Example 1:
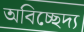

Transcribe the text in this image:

অবিচ্ছেদ্য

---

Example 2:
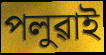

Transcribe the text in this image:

পলুৱাই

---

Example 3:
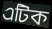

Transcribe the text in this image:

এটিক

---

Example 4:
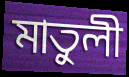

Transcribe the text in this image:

মাতুলী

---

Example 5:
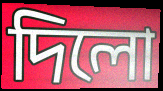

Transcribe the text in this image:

দিলো